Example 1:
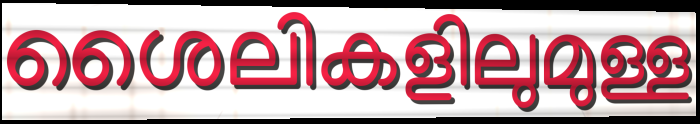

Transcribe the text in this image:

ശൈലികളിലുമുള്ള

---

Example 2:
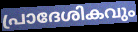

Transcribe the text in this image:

പ്രാദേശികവും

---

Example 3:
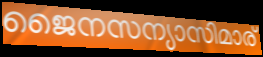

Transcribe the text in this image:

ജൈനസന്യാസിമാര്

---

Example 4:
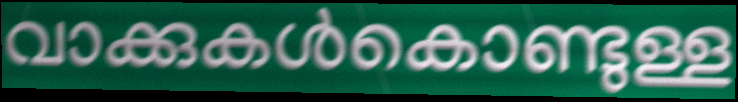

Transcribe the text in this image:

വാക്കുകൾകൊണ്ടുള്ള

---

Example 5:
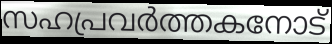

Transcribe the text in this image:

സഹപ്രവർത്തകനോട്